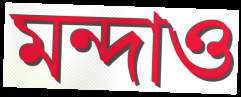
মন্দাও